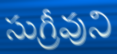
సుగ్రీవుని